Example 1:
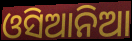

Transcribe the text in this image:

ଓସିଆନିଆ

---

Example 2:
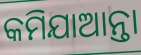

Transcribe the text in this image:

କମିଯାଆନ୍ତା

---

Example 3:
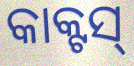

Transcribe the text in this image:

କାକ୍ଟସ୍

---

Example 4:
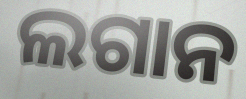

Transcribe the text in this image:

ଲଗାନ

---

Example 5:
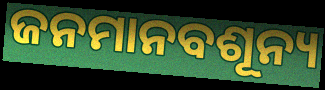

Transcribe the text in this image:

ଜନମାନବଶୂନ୍ୟ